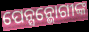
ପେନ୍ସନ୍ଭୋଗୀଙ୍କ